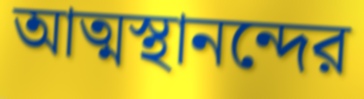
আত্মস্থানন্দের